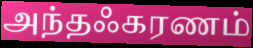
அந்தஃகரணம்